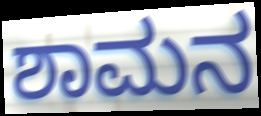
ಶಾಮನ